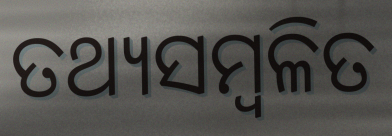
ତଥ୍ୟସମ୍ବଳିତ